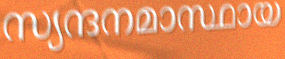
സ്യന്ദനമാസ്ഥായ